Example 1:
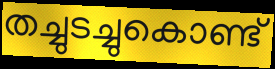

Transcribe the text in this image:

തച്ചുടച്ചുകൊണ്ട്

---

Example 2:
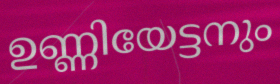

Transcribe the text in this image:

ഉണ്ണിയേട്ടനും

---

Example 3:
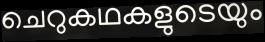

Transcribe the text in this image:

ചെറുകഥകളുടെയും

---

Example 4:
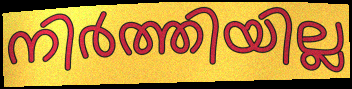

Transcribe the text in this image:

നിർത്തിയില്ല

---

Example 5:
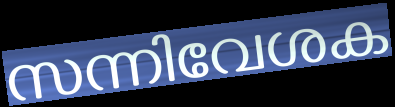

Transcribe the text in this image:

സന്നിവേശക